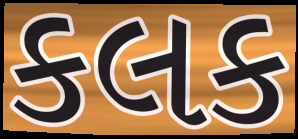
કલક